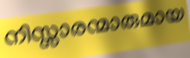
നിസ്സാരന്മാരുമായ